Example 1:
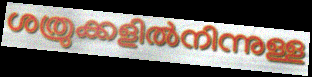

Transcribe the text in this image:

ശത്രുക്കളിൽനിന്നുള്ള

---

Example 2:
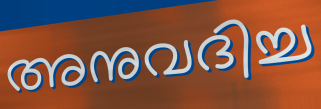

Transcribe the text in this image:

അനുവദിച്ച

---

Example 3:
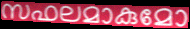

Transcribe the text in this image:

സഫലമാകുമോ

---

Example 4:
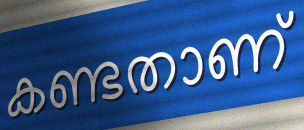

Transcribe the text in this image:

കണ്ടതാണ്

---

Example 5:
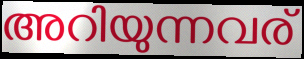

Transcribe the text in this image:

അറിയുന്നവര്